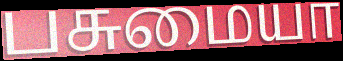
பசுமையா